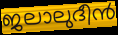
ജലാലുദീൻ